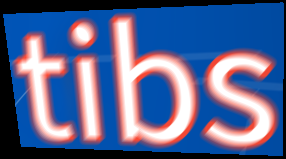
tibs